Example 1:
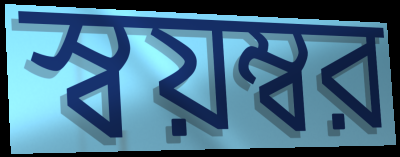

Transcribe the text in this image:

স্বয়ম্বর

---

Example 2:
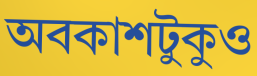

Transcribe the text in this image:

অবকাশটুকুও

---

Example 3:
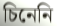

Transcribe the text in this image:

চিনেনি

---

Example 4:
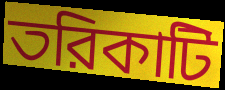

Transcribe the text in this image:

তরিকাটি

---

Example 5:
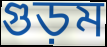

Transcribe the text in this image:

গুড়ম